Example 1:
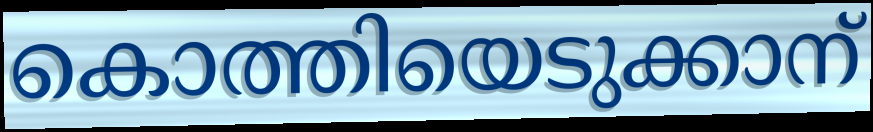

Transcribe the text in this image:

കൊത്തിയെടുക്കാന്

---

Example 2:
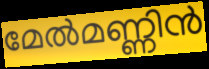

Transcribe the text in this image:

മേൽമണ്ണിൻ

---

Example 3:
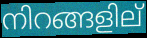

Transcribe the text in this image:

നിറങ്ങളില്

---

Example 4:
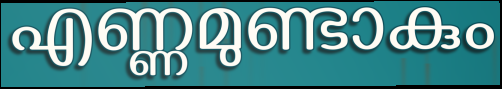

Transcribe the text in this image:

എണ്ണമുണ്ടാകും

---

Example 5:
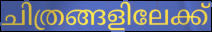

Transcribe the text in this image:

ചിത്രങ്ങളിലേക്ക്